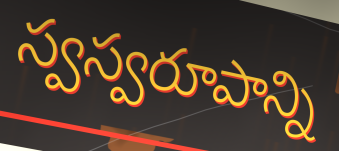
స్వస్వరూపాన్ని